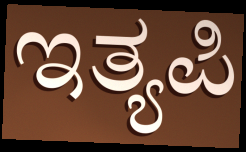
ಇತ್ಯಪಿ